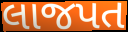
લાજપત